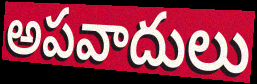
అపవాదులు